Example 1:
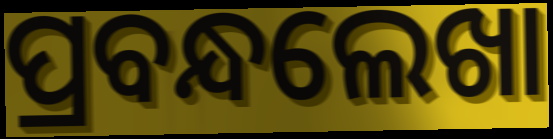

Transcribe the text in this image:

ପ୍ରବନ୍ଧଲେଖା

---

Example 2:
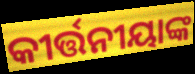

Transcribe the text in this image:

କୀର୍ତ୍ତନୀୟାଙ୍କ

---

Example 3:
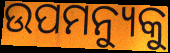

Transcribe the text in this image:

ଉପମନ୍ୟୁକୁ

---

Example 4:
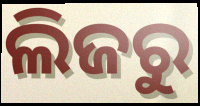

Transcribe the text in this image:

ଲିଜରୁ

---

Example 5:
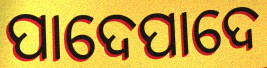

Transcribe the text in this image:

ପାଦେପାଦେ